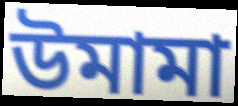
উমামা